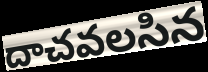
దాచవలసిన